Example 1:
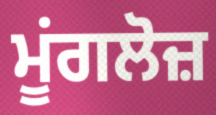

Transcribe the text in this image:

ਮੂਂਗਲੋਜ਼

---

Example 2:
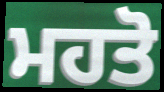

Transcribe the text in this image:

ਮਹਤੋ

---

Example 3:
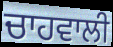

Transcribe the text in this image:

ਚਾਹਵਾਲੀ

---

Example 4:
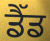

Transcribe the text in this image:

ਡੈੱਡ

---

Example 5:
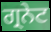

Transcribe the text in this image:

ਗ੍ਰਨੇਟ